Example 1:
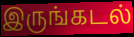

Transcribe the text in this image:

இருங்கடல்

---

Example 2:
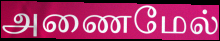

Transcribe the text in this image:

அணைமேல்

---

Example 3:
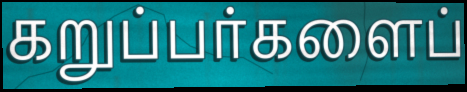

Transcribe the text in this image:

கறுப்பர்களைப்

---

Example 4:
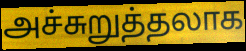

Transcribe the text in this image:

அச்சுறுத்தலாக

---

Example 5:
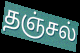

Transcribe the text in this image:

தஞ்சல்